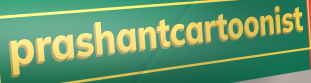
prashantcartoonist